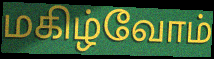
மகிழ்வோம்